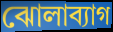
ঝোলাব্যাগ